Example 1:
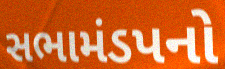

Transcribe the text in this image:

સભામંડપનો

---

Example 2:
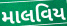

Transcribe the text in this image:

માલવિય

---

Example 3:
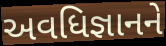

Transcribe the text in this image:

અવધિજ્ઞાનને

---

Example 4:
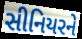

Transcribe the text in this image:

સીનિયરને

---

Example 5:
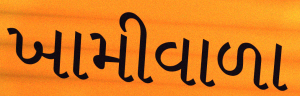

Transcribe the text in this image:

ખામીવાળા